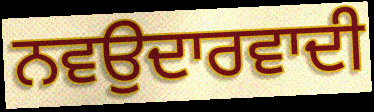
ਨਵਉਦਾਰਵਾਦੀ